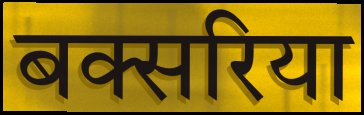
बक्सरिया